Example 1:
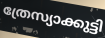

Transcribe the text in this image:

ത്രേസ്യാക്കുട്ടി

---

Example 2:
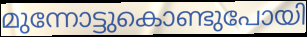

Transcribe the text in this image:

മുന്നോട്ടുകൊണ്ടുപോയി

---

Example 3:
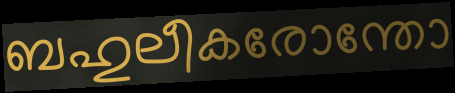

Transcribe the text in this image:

ബഹുലീകരോന്തോ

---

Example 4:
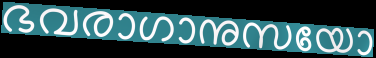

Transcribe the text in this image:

ഭവരാഗാനുസയോ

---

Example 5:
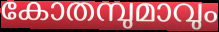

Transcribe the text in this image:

കോതമ്പുമാവും